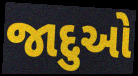
જાદુઓ